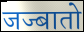
जज्बातो